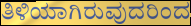
ತಿಳಿಯಾಗಿರುವುದರಿಂದ